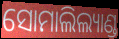
ସୋମାଲିଲ୍ୟାଣ୍ଡ